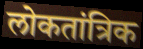
लोकतांत्रिक